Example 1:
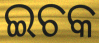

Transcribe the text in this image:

ଇଚକ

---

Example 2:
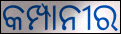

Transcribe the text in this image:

କମ୍ପାନୀର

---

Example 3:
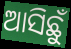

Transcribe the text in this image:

ଆସିଛୁଁ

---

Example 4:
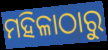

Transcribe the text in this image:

ମହିଳାଠାରୁ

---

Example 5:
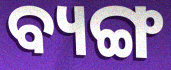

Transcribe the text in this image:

ବ୍ୟଙ୍ଗ